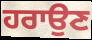
ਹਰਾਉਣ